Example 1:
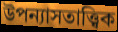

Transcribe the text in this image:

উপন্যাসতাত্ত্বিক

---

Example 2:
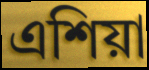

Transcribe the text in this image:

এশিয়া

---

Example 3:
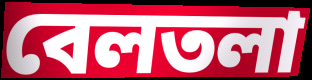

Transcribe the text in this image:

বেলতলা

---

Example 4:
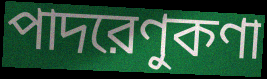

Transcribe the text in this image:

পাদরেণুকণা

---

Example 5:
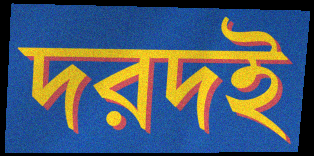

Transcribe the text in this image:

দরদই